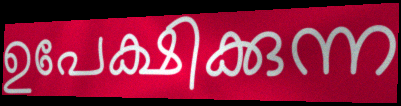
ഉപേക്ഷിക്കുന്ന